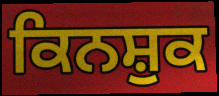
ਕਿਨਸ਼ੁਕ